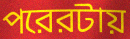
পরেরটায়